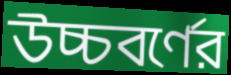
উচ্চবর্ণের